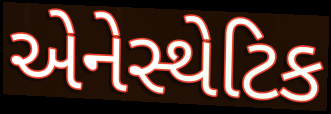
એનેસ્થેટિક